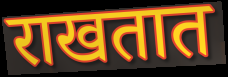
राखतात